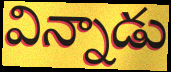
విన్నాడు